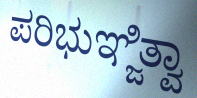
ಪರಿಭುಞ್ಜಿತ್ವಾ